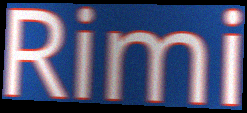
Rimi